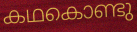
കഥകൊണ്ടു